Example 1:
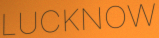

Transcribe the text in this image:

LUCKNOW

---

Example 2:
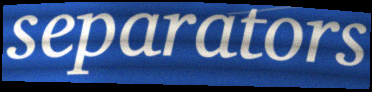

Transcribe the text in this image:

separators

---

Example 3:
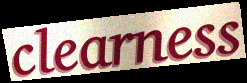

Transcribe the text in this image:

clearness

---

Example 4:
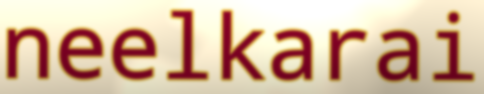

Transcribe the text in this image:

neelkarai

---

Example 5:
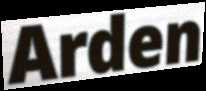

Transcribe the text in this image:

Arden